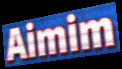
Aimim